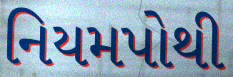
નિયમપોથી